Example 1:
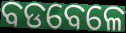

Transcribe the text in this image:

ବଡବେଳେ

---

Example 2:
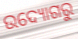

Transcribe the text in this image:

ଉଦ୍ୟୋଗରୁ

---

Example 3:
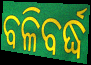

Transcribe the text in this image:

ବଳିବର୍ଦ୍ଧ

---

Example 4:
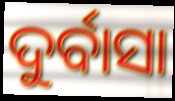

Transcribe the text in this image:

ଦୁର୍ବାସା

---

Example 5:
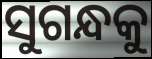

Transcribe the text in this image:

ସୁଗନ୍ଧକୁ